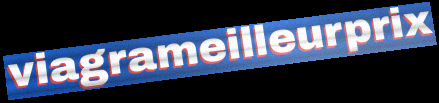
viagrameilleurprix